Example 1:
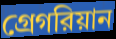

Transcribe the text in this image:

গ্রেগরিয়ান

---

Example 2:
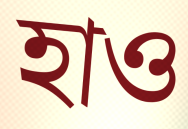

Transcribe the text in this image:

হাও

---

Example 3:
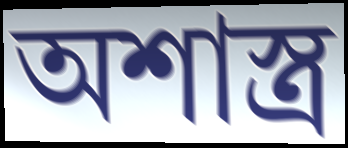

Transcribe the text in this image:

অশাস্ত্র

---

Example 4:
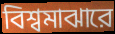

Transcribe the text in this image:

বিশ্বমাঝারে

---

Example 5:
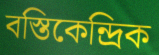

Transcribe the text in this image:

বস্তিকেন্দ্রিক